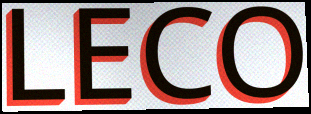
LECO